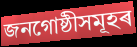
জনগোষ্ঠীসমূহৰ